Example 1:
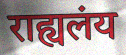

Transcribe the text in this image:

राह्यलंय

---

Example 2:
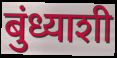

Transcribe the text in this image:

बुंध्याशी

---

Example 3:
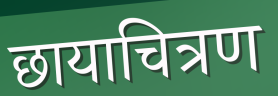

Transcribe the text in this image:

छायाचित्रण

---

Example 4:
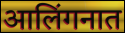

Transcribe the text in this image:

आलिंगनात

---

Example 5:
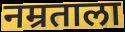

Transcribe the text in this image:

नम्रताला